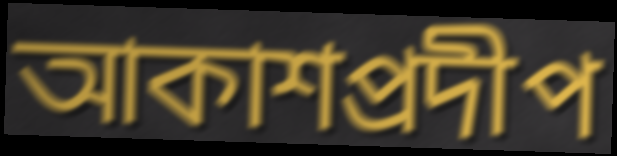
আকাশপ্রদীপ